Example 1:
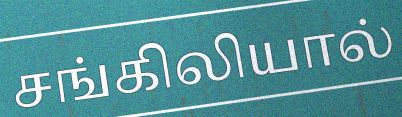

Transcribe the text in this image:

சங்கிலியால்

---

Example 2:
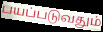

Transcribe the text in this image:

பயப்படுவதும்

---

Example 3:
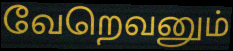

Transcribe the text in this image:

வேறெவனும்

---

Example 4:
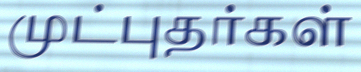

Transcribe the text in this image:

முட்புதர்கள்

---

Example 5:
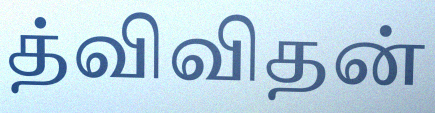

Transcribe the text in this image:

த்விவிதன்